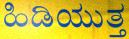
ಹಿಡಿಯುತ್ತ